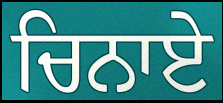
ਚਿਨਾਏ